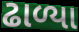
ઢાળ્યા